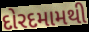
દોરદમામથી